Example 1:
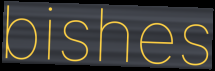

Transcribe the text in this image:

bishes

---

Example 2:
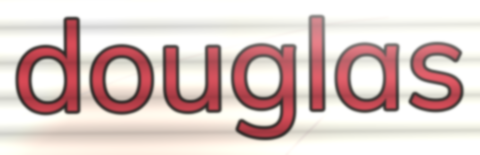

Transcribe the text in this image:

douglas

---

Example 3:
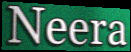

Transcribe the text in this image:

Neera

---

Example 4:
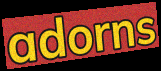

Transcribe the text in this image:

adorns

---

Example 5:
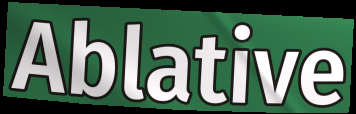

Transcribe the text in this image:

Ablative